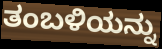
ತಂಬಳಿಯನ್ನು